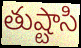
తుష్టాసి